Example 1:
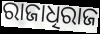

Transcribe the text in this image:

ରାଜାଧିରାଜ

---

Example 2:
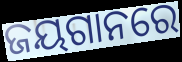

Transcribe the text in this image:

ଜୟଗାନରେ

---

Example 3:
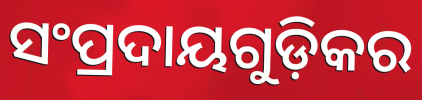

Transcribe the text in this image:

ସଂପ୍ରଦାୟଗୁଡ଼ିକର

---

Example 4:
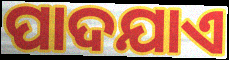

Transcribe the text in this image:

ପାଦଯାଏ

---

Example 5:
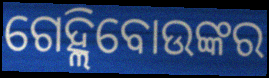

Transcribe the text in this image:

ଗେହ୍ଲିବୋଉଙ୍କର